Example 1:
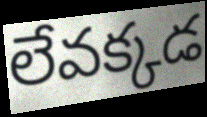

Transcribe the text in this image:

లేవక్కడ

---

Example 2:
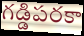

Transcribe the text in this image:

గడ్డిపరకా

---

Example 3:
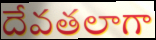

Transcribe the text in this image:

దేవతలాగా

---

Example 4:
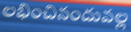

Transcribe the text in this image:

లభించినందువల్ల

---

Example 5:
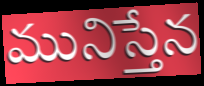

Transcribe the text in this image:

మునిస్తేన